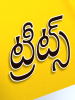
ట్రీట్స్